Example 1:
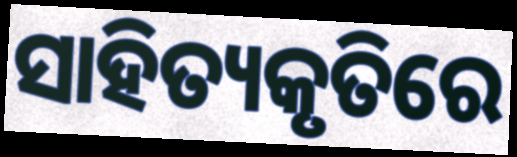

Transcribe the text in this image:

ସାହିତ୍ୟକୃତିରେ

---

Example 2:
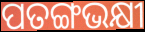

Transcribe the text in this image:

ପତଙ୍ଗଭକ୍ଷୀ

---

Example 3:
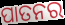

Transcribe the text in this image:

ପାତନର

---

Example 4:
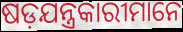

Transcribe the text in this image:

ଷଡ଼ଯନ୍ତ୍ରକାରୀମାନେ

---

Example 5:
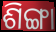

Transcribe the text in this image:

ଶିଙ୍ଗା